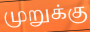
முறுக்கு